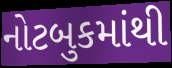
નોટબુકમાંથી